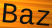
Baz